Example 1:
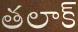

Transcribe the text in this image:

తలాక్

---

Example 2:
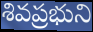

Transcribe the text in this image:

శివప్రభుని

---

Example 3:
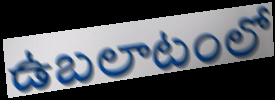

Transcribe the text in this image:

ఉబలాటంలో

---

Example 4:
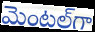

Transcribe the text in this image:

మెంటల్‌గా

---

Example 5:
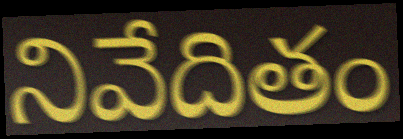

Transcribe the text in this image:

నివేదితం